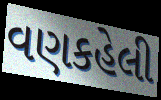
વણકહેલી